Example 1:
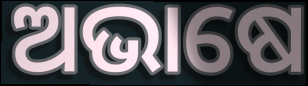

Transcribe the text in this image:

ଅଭାଷେ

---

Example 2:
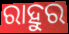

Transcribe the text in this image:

ରାହୁର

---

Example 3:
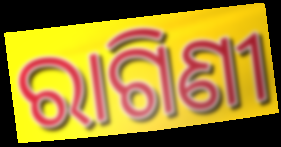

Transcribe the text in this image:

ରାଗିଣୀ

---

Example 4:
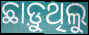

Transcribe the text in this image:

ଛାଡ଼ୁଥିଲୁ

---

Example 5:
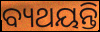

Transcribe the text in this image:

ବ୍ୟଥୟନ୍ତି